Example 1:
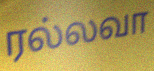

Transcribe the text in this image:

ரல்லவா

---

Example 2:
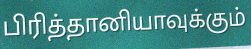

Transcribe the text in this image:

பிரித்தானியாவுக்கும்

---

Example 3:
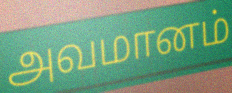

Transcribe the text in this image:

அவமானம்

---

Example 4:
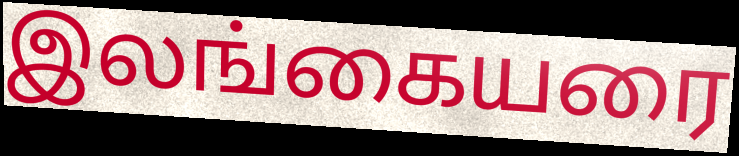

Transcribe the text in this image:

இலங்கையரை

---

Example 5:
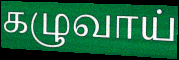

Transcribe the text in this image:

கழுவாய்